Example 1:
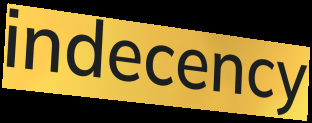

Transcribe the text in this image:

indecency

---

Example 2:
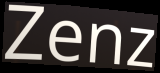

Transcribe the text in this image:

Zenz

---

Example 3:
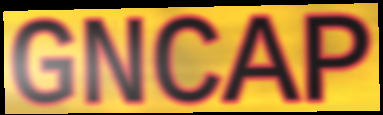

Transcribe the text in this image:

GNCAP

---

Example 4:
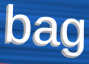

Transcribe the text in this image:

bag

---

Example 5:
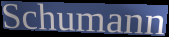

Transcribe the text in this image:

Schumann